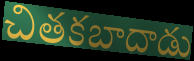
చితకబాదాడు